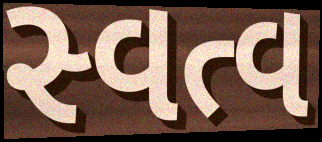
સ્વત્વ